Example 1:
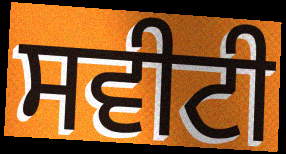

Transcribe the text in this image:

ਸਵੀਟੀ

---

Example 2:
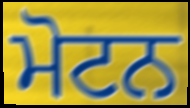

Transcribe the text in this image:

ਮੋਟਨ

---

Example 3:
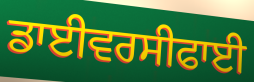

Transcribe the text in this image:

ਡਾਈਵਰਸੀਫਾਈ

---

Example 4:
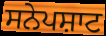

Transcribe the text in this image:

ਸਨੇਪਸ਼ਾਟ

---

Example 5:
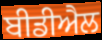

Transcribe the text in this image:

ਬੀਡੀਐਲ